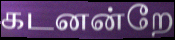
கடனன்றே